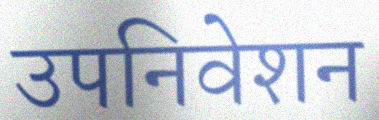
उपनिवेशन